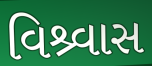
વિશ્ર્વાસ